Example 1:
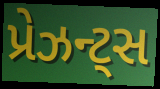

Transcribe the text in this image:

પ્રેઝન્ટ્સ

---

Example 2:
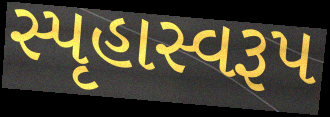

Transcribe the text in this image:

સ્પૃહાસ્વરૂપ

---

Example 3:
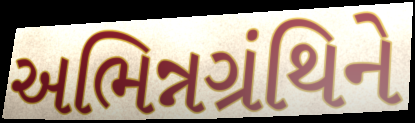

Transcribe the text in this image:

અભિન્નગ્રંથિને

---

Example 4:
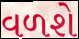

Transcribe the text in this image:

વળશે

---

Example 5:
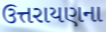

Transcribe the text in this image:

ઉત્તરાયણના